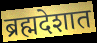
ब्रह्मदेशात